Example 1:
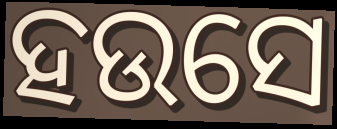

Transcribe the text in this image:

ହଉସେ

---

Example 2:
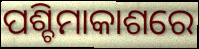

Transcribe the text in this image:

ପଶ୍ଚିମାକାଶରେ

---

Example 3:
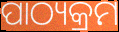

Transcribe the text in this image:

ପାଠ୍ୟକ୍ରମ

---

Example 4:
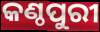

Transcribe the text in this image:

କଣ୍ଠପୁରୀ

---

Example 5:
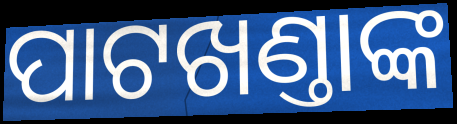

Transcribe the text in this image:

ପାଟଖଣ୍ତାଙ୍କ